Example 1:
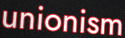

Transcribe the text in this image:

unionism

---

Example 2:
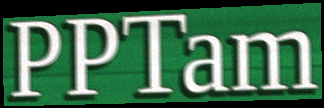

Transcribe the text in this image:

PPTam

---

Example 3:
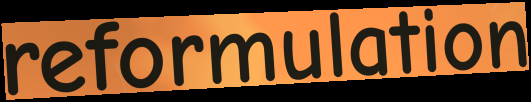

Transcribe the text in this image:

reformulation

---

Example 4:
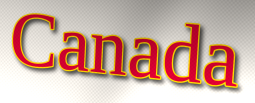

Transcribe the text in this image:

Canada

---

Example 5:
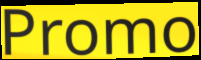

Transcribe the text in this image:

Promo